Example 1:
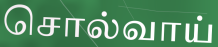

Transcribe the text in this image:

சொல்வாய்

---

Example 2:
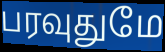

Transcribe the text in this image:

பரவுதுமே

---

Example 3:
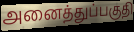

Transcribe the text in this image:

அனைத்துப்பகுதி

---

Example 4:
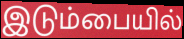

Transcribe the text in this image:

இடும்பையில்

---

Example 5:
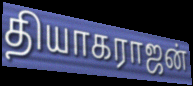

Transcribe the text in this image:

தியாகராஜன்